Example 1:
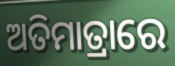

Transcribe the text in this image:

ଅତିମାତ୍ରାରେ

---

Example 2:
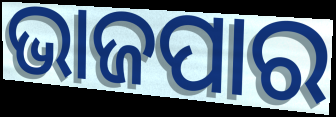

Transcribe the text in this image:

ଭାଜପାର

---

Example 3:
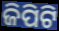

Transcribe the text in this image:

ଜିପିଟି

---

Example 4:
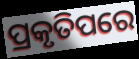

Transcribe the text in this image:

ପ୍ରକୃତିପରେ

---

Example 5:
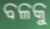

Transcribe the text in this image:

ବଳକୁ